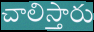
చాలిస్తారు